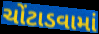
ચોંટાડવામાં